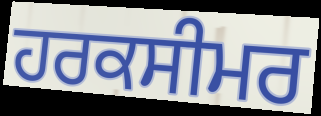
ਹਰਕਸੀਮਰ